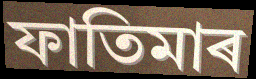
ফাতিমাৰ